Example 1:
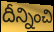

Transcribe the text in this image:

దీన్నించి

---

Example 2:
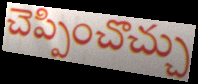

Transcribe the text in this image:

చెప్పించొచ్చు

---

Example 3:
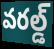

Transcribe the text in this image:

వరల్డ్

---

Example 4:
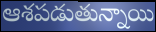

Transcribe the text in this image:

ఆశపడుతున్నాయి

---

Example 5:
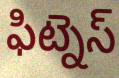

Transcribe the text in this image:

ఫిట్నెస్